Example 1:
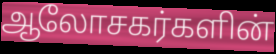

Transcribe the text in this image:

ஆலோசகர்களின்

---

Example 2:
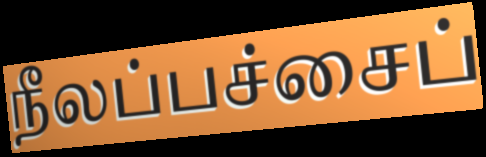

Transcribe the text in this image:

நீலப்பச்சைப்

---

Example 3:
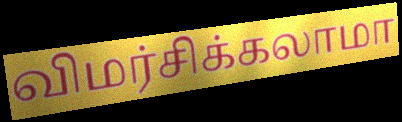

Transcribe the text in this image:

விமர்சிக்கலாமா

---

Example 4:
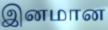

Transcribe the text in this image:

இனமான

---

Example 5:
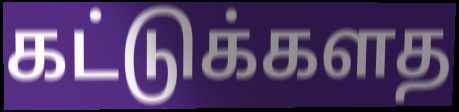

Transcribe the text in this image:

கட்டுக்களத